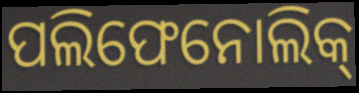
ପଲିଫେନୋଲିକ୍